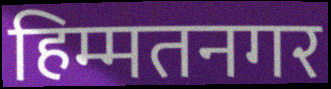
हिम्‍मतनगर